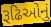
રૂઢિઓનું